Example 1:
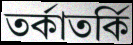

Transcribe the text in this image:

তৰ্কাতৰ্কি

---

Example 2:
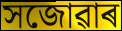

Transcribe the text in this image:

সজোৱাৰ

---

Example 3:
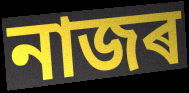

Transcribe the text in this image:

নাজৰ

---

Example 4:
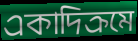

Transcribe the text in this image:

একাদিক্ৰমে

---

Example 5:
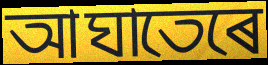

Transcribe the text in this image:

আঘাতেৰে